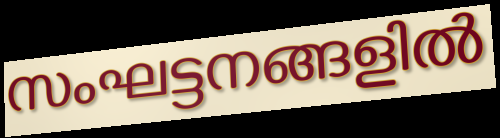
സംഘട്ടനങ്ങളിൽ